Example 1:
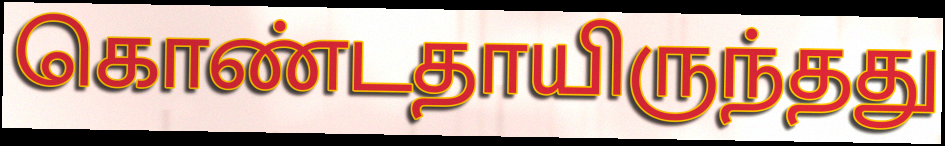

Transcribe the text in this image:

கொண்டதாயிருந்தது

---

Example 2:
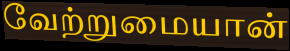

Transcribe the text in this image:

வேற்றுமையான்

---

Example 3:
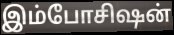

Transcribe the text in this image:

இம்போசிஷன்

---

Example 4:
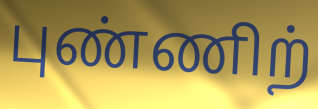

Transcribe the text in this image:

புண்ணிற்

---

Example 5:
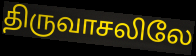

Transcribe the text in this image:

திருவாசலிலே